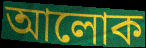
আলোক